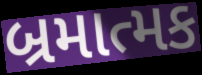
બ્રમાત્મક